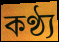
কণ্ঠ্য